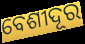
ବେଶୀଦୂର